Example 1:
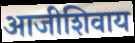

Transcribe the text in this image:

आजीशिवाय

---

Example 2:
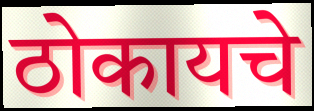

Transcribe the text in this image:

ठोकायचे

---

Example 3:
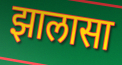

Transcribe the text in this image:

झालासा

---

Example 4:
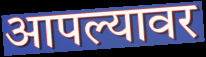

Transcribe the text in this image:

आपल्यावर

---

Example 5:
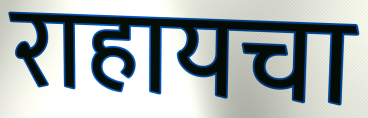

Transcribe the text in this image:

राहायचा